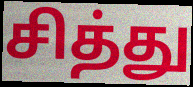
சித்து